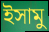
ইসামু